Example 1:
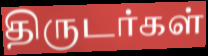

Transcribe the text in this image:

திருடர்கள்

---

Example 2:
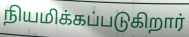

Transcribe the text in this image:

நியமிக்கப்படுகிறார்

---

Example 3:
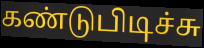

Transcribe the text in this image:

கண்டுபிடிச்சு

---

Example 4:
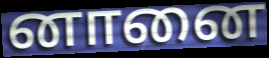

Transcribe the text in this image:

னானை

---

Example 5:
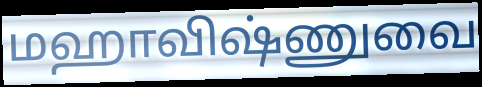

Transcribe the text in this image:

மஹாவிஷ்ணுவை